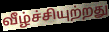
வீழ்ச்சியுற்றது